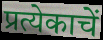
प्रत्येकाचें